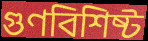
গুণবিশিষ্ট